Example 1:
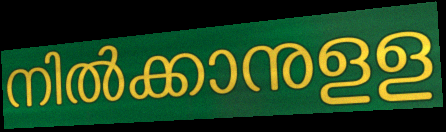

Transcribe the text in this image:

നിൽക്കാനുളള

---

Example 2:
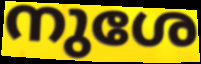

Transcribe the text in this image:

നുശേ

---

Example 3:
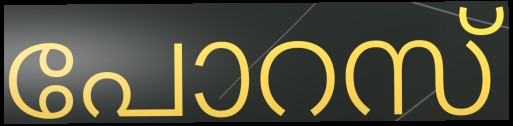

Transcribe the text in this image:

പോറസ്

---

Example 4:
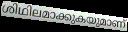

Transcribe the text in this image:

ശിഥിലമാക്കുകയുമാണ്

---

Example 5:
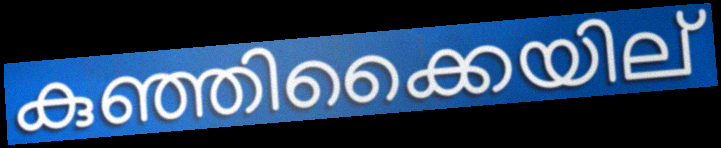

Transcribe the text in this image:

കുഞ്ഞിക്കൈയില്